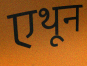
एथून